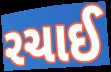
રચાઈ